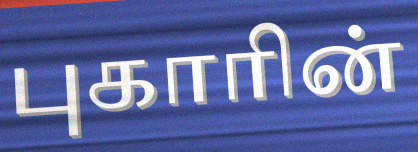
புகாரின்